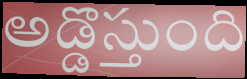
అడ్డొస్తుంది